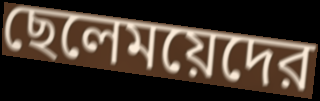
ছেলেময়েদের